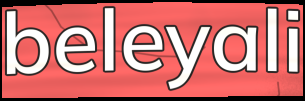
beleyali